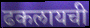
ढकलायची